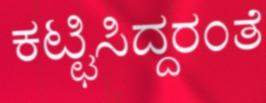
ಕಟ್ಟಿಸಿದ್ದರಂತೆ